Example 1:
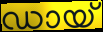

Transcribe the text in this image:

ഡായ്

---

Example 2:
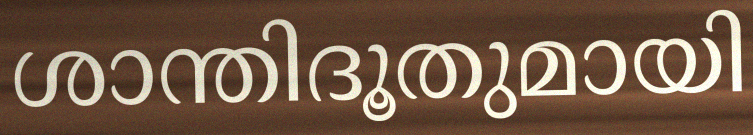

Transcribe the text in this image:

ശാന്തിദൂതുമായി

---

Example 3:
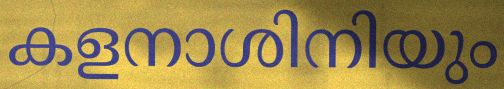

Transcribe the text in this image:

കളനാശിനിയും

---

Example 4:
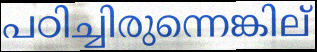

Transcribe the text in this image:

പഠിച്ചിരുന്നെങ്കില്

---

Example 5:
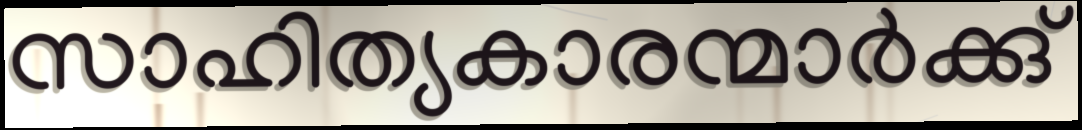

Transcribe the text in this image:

സാഹിത്യകാരന്മാർക്കു്